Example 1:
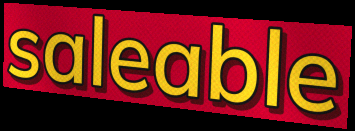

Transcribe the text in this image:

saleable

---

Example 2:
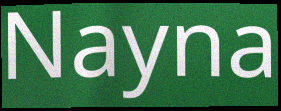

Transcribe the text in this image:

Nayna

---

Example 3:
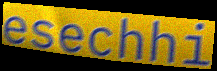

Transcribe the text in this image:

esechhi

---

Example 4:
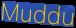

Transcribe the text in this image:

Muddu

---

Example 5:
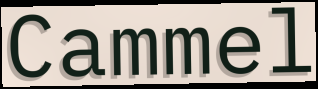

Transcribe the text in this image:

Cammel